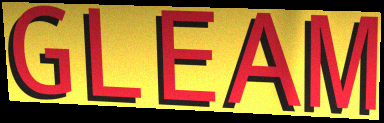
GLEAM